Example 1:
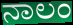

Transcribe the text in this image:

ನಾಲಂ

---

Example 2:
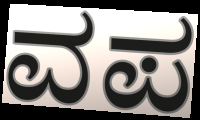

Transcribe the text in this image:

ವಪ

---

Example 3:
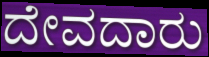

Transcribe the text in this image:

ದೇವದಾರು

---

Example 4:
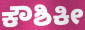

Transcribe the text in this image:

ಕೌಶಿಕೀ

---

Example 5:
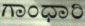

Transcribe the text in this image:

ಗಾಂಧಾರಿ